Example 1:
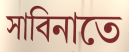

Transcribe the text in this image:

সাবিনাতে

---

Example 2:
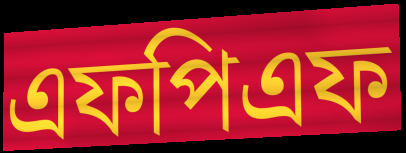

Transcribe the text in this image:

এফপিএফ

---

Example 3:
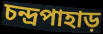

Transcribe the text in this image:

চন্দ্রপাহাড়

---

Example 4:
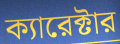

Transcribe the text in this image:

ক্যারেক্টার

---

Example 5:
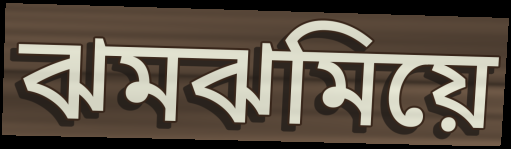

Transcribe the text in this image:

ঝমঝমিয়ে